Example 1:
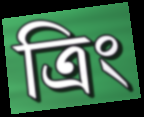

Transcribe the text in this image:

ত্রিং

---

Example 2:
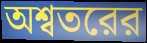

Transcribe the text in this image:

অশ্বতরের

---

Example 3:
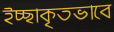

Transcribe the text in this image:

ইচ্ছাকৃতভাবে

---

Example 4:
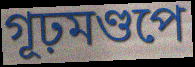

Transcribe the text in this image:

গূঢ়মণ্ডপে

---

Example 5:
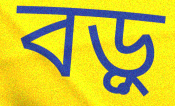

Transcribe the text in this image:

বড়ু